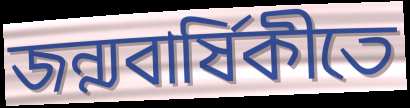
জন্মবাৰ্ষিকীতে